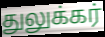
துலுக்கர்